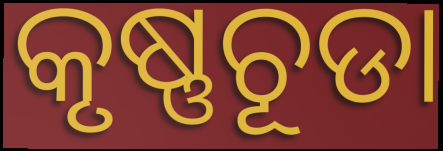
କୃଷ୍ଣଚୂଡା